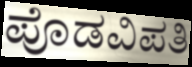
ಪೊಡವಿಪತಿ